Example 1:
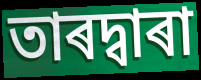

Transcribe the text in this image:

তাৰদ্বাৰা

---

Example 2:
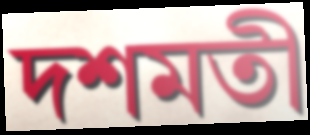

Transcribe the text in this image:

দশমতী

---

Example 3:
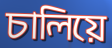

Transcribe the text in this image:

চালিয়ে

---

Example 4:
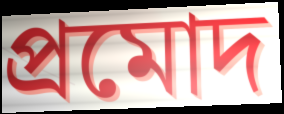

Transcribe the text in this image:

প্ৰমোদ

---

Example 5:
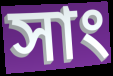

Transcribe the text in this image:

সাং